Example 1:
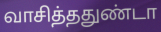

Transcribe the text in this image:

வாசித்ததுண்டா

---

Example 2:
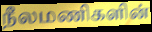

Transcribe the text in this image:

நீலமணிகளின்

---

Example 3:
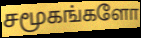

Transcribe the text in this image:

சமூகங்களோ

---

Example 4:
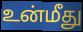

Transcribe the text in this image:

உன்மீது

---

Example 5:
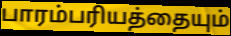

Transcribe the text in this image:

பாரம்பரியத்தையும்